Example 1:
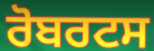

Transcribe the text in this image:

ਰੋਬਰਟਸ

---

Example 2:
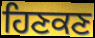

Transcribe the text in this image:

ਹਿਣਕਣ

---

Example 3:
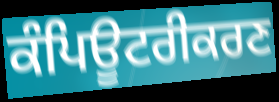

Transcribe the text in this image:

ਕੰਪਿਊਟਰੀਕਰਣ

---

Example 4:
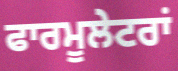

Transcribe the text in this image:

ਫਾਰਮੂਲੇਟਰਾਂ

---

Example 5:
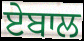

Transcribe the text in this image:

ਏਬਾਲ